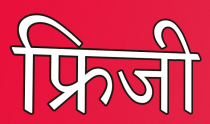
फ्रिजी